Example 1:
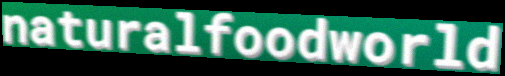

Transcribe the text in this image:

naturalfoodworld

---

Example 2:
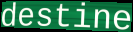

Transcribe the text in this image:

destine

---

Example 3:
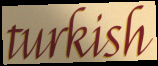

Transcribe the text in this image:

turkish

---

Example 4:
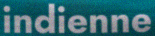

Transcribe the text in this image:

indienne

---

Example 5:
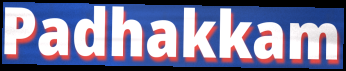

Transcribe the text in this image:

Padhakkam